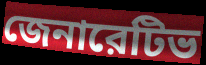
জেনারেটিভ